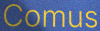
Comus